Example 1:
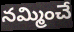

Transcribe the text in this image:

నమ్మించే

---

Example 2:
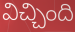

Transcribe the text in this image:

విచ్చింది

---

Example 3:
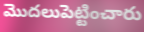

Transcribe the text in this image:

మొదలుపెట్టించారు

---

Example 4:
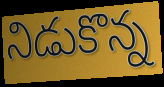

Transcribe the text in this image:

నిడుకొన్న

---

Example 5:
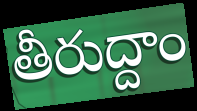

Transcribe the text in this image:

తీరుద్దాం